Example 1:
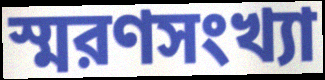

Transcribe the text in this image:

স্মরণসংখ্যা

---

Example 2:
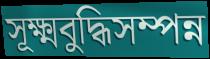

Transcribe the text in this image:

সূক্ষ্মবুদ্ধিসম্পন্ন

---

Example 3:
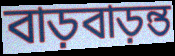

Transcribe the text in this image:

বাড়বাড়ন্ত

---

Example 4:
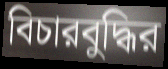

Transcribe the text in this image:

বিচারবুদ্ধির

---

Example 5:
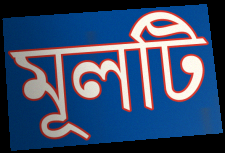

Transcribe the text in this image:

মূলটি